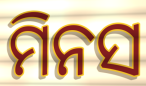
ମିନସ